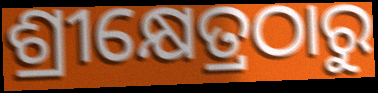
ଶ୍ରୀକ୍ଷେତ୍ରଠାରୁ